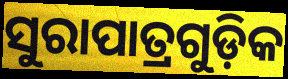
ସୁରାପାତ୍ରଗୁଡ଼ିକ